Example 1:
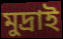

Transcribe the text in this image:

মুদ্রাই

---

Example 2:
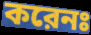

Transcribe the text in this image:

করেনঃ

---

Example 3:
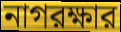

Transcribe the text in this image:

নাগরক্ষার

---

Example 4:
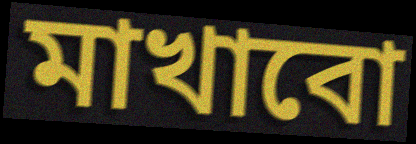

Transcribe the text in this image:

মাখাবো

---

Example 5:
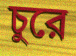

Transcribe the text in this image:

চুরে